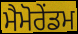
ਮੈਮੋਰੇਂਡਮ